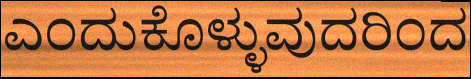
ಎಂದುಕೊಳ್ಳುವುದರಿಂದ